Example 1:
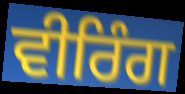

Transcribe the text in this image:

ਵੀਰਿੰਗ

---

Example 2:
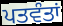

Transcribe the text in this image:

ਪਤਵੰਤਾਂ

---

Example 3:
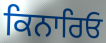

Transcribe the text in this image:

ਕਿਨਾਰਿਓ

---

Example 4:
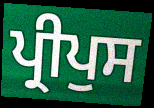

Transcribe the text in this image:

ਪ੍ਰੀਪੁਸ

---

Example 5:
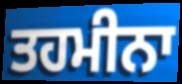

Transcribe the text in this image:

ਤਹਮੀਨਾ